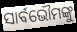
ସାର୍ବଭୌମଙ୍କୁ